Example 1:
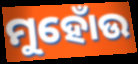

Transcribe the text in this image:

ମୁହୋଁଉ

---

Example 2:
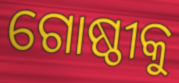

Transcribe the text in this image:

ଗୋଷ୍ଠୀକୁ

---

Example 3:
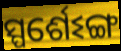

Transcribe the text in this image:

ସ୍ପର୍ଶେଽଙ୍ଗ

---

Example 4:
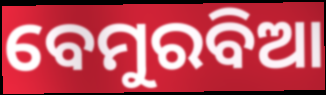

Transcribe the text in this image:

ବେମୁରବିଆ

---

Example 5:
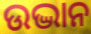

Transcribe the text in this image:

ଉଦ୍ଭାନ